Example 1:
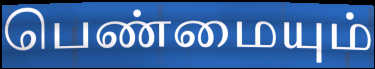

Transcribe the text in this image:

பெண்மையும்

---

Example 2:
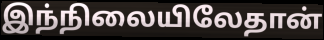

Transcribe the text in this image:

இந்நிலையிலேதான்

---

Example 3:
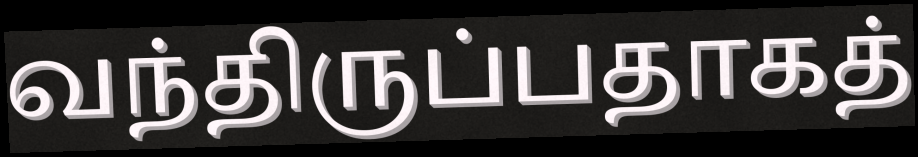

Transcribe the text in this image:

வந்திருப்பதாகத்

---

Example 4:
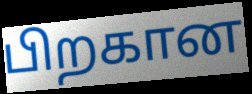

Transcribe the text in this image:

பிறகான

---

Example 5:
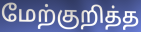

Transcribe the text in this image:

மேற்குறித்த